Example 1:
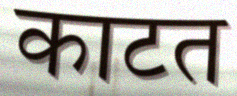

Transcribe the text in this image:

काटत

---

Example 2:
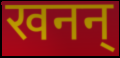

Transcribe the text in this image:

खनन्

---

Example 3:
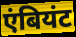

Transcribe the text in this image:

एंबियंट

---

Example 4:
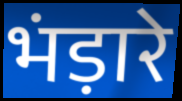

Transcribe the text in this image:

भंड़ारे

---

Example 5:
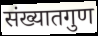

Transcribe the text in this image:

संख्यातगुण